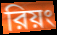
রিয়ং